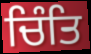
ਚਿੰਤਿ